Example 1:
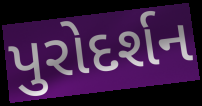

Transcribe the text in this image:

પુરોદર્શન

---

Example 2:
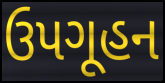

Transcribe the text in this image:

ઉપગૂહન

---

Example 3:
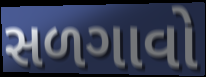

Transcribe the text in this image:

સળગાવો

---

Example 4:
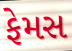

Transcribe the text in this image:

ફેમસ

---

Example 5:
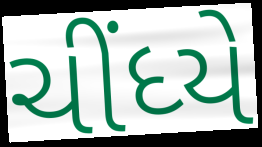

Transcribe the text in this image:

ચીંધ્યે